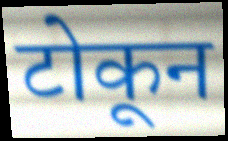
टोकून